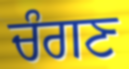
ਚੰਗਣ